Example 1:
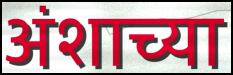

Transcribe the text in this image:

अंशाच्या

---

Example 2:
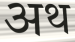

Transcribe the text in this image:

अथ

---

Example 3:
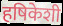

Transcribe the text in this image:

हषिकेशी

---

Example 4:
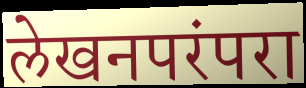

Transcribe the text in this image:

लेखनपरंपरा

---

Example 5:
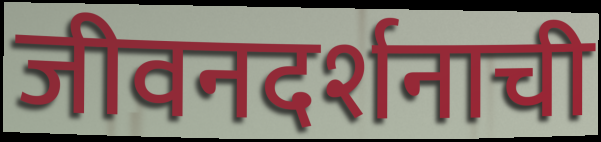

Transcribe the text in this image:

जीवनदर्शनाची